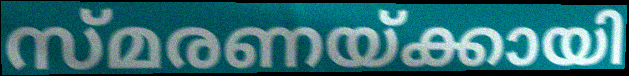
സ്മരണയ്ക്കായി